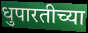
धुपारतीच्या